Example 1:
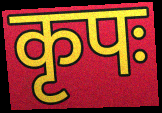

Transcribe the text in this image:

कृपः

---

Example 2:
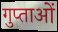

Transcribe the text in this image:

गुप्ताओं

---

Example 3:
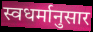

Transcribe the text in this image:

स्वधर्मानुसार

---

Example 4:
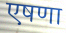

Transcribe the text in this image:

एषणा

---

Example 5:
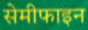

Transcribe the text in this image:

सेमीफाइन